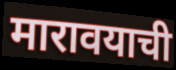
मारावयाची